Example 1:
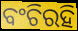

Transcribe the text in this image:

ବଂଚିରହି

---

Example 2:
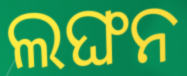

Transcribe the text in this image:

ଲଙ୍ଘନ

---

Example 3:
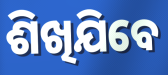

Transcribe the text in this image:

ଶିଖିଯିବେ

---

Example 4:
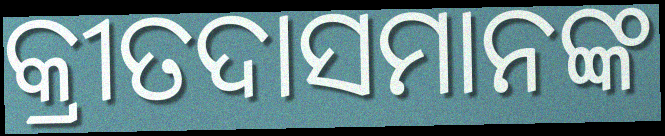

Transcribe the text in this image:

କ୍ରୀତଦାସମାନଙ୍କ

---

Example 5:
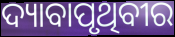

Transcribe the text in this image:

ଦ୍ୟାବାପୃଥିବୀର